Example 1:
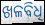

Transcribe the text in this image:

ଖଳବିଧି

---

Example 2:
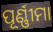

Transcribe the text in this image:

ପୂର୍ଣ୍ଣୀମା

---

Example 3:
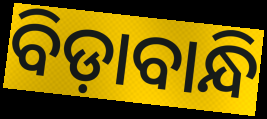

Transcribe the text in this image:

ବିଡ଼ାବାନ୍ଧି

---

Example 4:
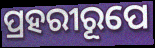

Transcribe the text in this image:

ପ୍ରହରୀରୂପେ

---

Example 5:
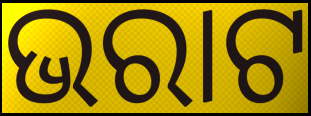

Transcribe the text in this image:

ଭରାଟ